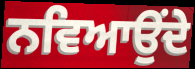
ਨਵਿਆਉਂਦੇ